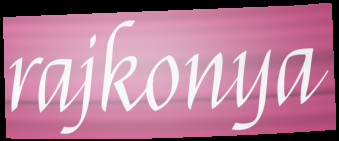
rajkonya